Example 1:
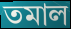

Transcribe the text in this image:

তমাল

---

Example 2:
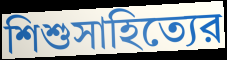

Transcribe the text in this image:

শিশুসাহিত্যের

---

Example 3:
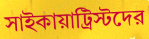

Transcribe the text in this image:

সাইকায়াট্রিস্টদের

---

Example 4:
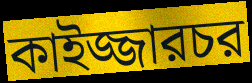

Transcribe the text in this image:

কাইজ্জারচর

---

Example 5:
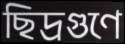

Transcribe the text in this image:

ছিদ্রগুণে